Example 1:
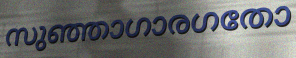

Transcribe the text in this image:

സുഞ്ഞാഗാരഗതോ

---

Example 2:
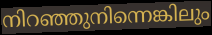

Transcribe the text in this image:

നിറഞ്ഞുനിന്നെങ്കിലും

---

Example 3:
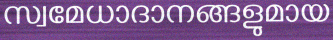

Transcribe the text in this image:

സ്വമേധാദാനങ്ങളുമായ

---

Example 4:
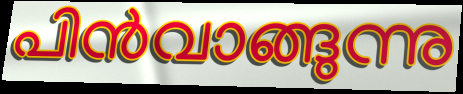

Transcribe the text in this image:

പിൻവാങ്ങുന്നു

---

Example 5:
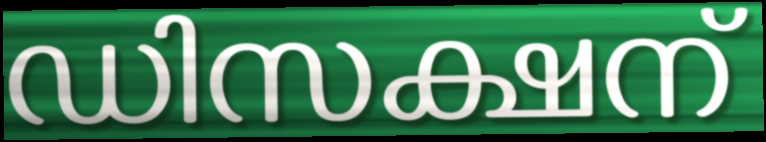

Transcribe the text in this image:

ഡിസക്ഷന്